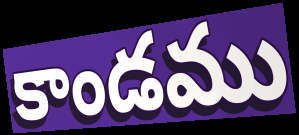
కాండము